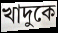
খাদুকে